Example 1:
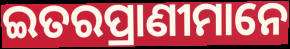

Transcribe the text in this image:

ଇତରପ୍ରାଣୀମାନେ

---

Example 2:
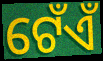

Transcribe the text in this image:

ଟେଁଏଁ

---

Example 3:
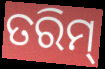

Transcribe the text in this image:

ତରିମ୍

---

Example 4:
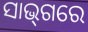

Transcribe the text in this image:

ସାଭ୍‌ଗରେ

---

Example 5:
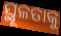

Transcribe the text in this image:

ସ୍ଥୂଳତାକୁ